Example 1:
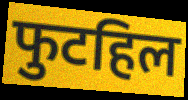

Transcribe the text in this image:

फुटहिल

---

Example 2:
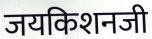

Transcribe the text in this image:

जयकिशनजी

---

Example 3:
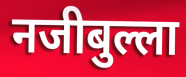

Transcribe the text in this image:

नजीबुल्ला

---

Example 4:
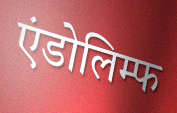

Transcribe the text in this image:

एंडोलिम्फ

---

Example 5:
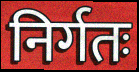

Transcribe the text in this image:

निर्गतः